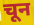
चून